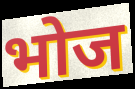
भोज